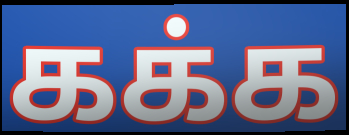
கக்க